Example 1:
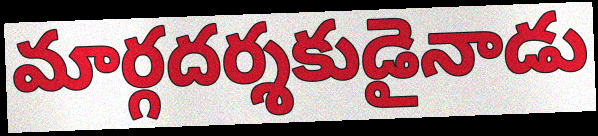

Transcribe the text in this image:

మార్గదర్శకుడైనాడు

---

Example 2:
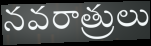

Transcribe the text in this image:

నవరాత్రులు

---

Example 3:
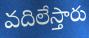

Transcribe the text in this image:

వదిలేస్తారు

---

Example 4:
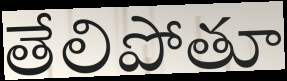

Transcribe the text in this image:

తేలిపోతూ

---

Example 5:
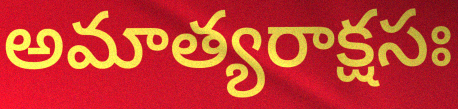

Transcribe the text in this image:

అమాత్యరాక్షసః